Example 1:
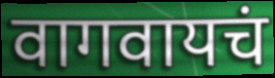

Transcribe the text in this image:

वागवायचं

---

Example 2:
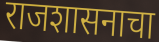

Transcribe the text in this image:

राजशासनाचा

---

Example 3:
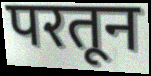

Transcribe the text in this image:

परतून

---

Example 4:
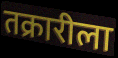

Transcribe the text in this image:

तक्रारीला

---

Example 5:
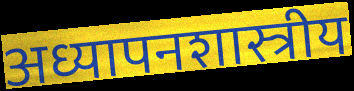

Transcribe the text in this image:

अध्यापनशास्त्रीय